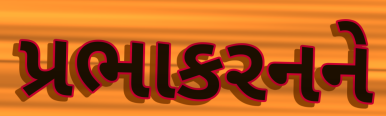
પ્રભાકરનને